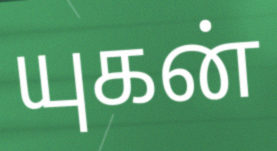
யுகன்